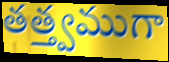
తత్త్వముగా